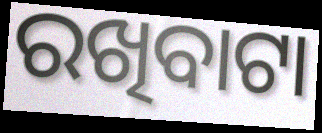
ରଖିବାଟା